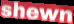
shewn